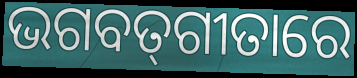
ଭଗବତ୍‌ଗୀତାରେ